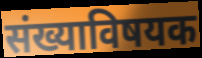
संख्याविषयक